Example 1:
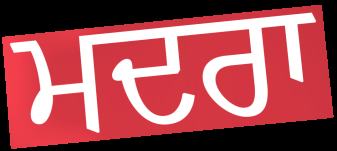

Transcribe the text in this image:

ਮਦਰਾ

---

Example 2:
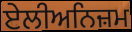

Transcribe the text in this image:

ਏਲੀਅਨਿਜ਼ਮ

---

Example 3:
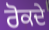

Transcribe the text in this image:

ਰੋਕਦੇ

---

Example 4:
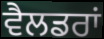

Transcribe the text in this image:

ਵੈਲਡਰਾਂ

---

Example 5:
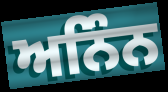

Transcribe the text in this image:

ਅਨਿੰਨ